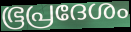
ഭൂപ്രദേശം